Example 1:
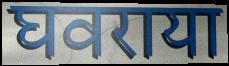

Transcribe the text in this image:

घवराया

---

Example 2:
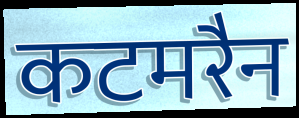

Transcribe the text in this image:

कटमरैन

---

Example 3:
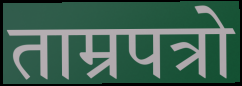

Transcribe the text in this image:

ताम्रपत्रो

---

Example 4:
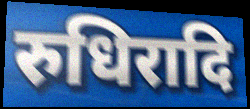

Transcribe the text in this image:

रुधिरादि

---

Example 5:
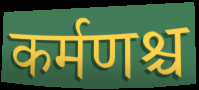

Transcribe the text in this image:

कर्मणश्च